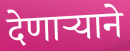
देणार्‍याने